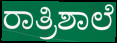
ರಾತ್ರಿಶಾಲೆ